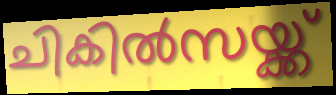
ചികിൽസയ്ക്ക്